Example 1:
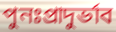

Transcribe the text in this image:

পুনঃপ্রাদুর্ভাব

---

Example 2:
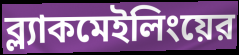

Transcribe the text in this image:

ব্ল্যাকমেইলিংয়ের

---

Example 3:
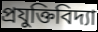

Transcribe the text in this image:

প্রযুক্তিবিদ্যা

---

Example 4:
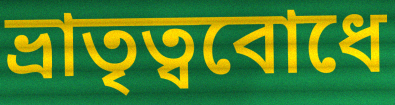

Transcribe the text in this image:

ভ্রাতৃত্ববোধে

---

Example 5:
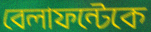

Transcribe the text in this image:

বেলাফন্টেকে